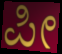
ಪೀ